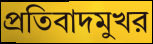
প্রতিবাদমুখর